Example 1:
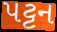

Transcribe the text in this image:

પટ્ટન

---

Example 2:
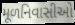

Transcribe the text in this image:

મૂળનિવાસીઓ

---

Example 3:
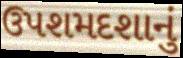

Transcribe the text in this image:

ઉપશમદશાનું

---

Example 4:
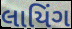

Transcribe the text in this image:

લાયિંગ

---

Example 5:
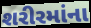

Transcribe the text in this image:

શરીરમાંના